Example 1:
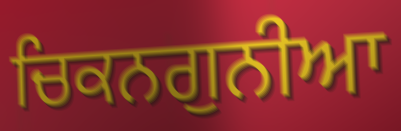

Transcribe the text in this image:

ਚਿਕਨਗੁਨੀਆ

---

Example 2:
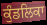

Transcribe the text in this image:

ਕੁੰਡਲਿਕਾ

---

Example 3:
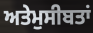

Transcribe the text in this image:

ਅਤੇਮੁਸੀਬਤਾਂ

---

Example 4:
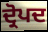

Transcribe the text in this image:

ਦ੍ਰੋਪਦ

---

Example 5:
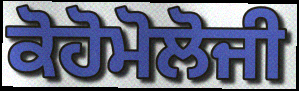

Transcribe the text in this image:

ਕੋਹੋਮੋਲੋਜੀ